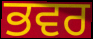
ਭਵਰ